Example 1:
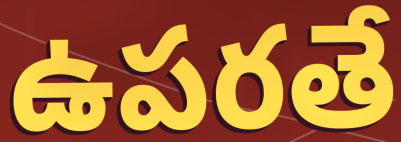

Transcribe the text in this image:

ఉపరతే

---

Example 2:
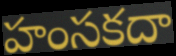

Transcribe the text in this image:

హంసకదా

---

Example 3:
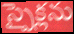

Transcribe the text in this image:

స్పైక్లను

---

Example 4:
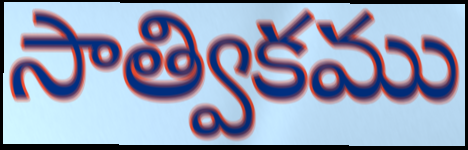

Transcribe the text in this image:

సాత్వికము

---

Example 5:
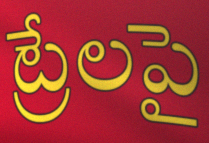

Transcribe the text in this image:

ట్రేలపై